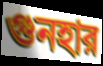
গুনহার